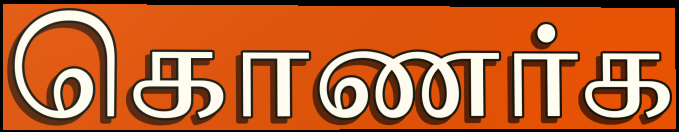
கொணர்க